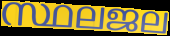
സ്ഥലജല